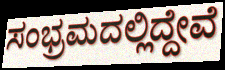
ಸಂಭ್ರಮದಲ್ಲಿದ್ದೇವೆ